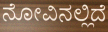
ನೋವಿನಲ್ಲಿದೆ